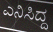
ಎನಿಸಿದ್ದ